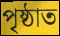
পৃষ্ঠাত